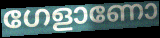
ഗേളാണോ